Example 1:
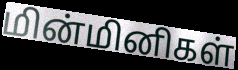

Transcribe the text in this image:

மின்மினிகள்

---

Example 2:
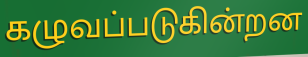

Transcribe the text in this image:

கழுவப்படுகின்றன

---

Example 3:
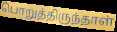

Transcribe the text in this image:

பொறுத்திருந்தாள்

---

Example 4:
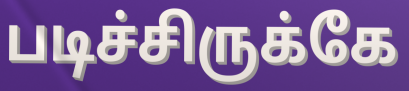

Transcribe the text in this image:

படிச்சிருக்கே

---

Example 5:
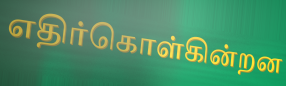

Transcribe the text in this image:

எதிர்கொள்கின்றன